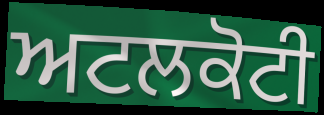
ਅਟਲਕੋਟੀ